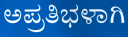
ಅಪ್ರತಿಭಳಾಗಿ